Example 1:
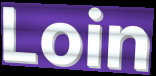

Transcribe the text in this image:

Loin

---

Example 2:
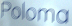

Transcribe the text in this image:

Poloma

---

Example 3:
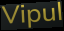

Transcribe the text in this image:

Vipul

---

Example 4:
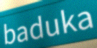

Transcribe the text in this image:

baduka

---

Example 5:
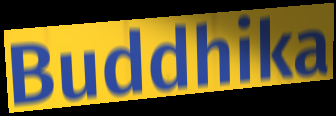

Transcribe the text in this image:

Buddhika